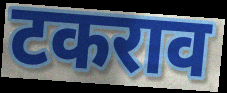
टकराव